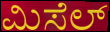
ಮಿಸೆಲ್